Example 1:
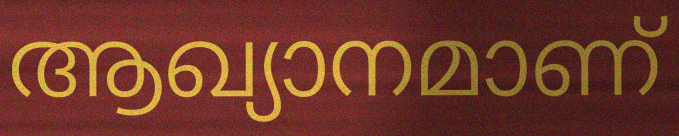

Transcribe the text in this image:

ആഖ്യാനമാണ്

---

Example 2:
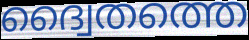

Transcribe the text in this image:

ദ്വൈതത്തെ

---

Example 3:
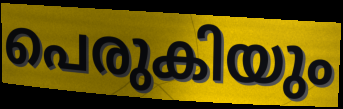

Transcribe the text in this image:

പെരുകിയും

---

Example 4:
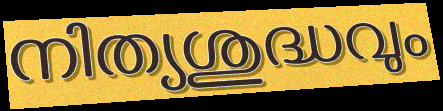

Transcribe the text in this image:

നിത്യശുദ്ധവും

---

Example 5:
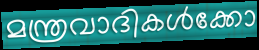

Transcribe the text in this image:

മന്ത്രവാദികൾക്കോ